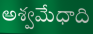
అశ్వమేధాది